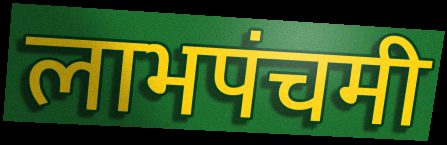
लाभपंचमी